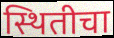
स्थितीचा